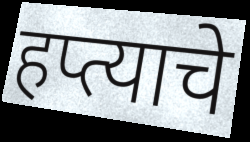
हप्त्याचे